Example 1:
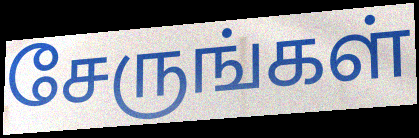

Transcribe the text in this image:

சேருங்கள்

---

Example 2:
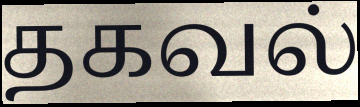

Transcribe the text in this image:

தகவல்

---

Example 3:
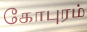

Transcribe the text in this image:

கோபுரம்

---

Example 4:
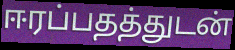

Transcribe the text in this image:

ஈரப்பதத்துடன்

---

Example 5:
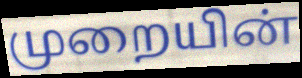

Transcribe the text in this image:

முறையின்